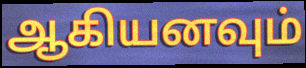
ஆகியனவும்